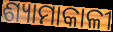
ଶ୍ୟାମାକାଳୀ